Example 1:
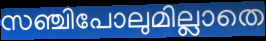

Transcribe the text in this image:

സഞ്ചിപോലുമില്ലാതെ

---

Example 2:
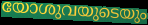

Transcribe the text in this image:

യോശുവയുടെയും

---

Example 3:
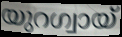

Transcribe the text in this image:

യുറഗ്വായ്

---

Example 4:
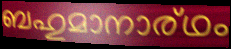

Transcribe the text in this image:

ബഹുമാനാര്ഥം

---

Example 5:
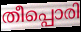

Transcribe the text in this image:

തീപ്പൊരി